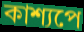
কাশ্যপে